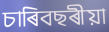
চাৰিবছৰীয়া